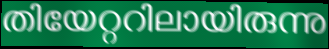
തിയേറ്ററിലായിരുന്നു